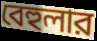
বেহুলার